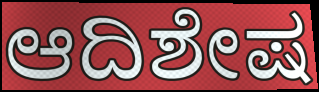
ಆದಿಶೇಷ